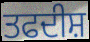
ਤਫਦੀਸ਼